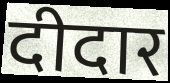
दीदार